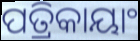
ପତ୍ରିକାୟାଂ